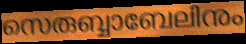
സെരുബ്ബാബേലിനും